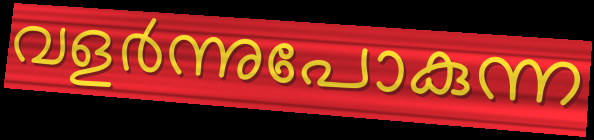
വളർന്നുപോകുന്ന